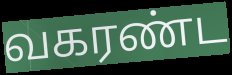
வகரண்ட